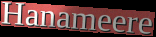
Hanameere